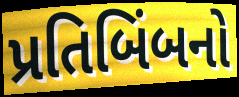
પ્રતિબિંબનો